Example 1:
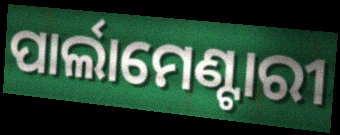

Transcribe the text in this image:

ପାର୍ଲାମେଣ୍ଟାରୀ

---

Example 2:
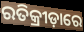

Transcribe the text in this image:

ରତିକ୍ରୀଡ଼ାରେ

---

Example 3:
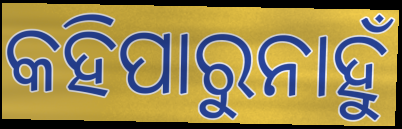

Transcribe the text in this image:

କହିପାରୁନାହୁଁ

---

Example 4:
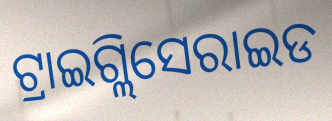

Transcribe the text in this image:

ଟ୍ରାଇଗ୍ଲିସେରାଇଡ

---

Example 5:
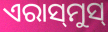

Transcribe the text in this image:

ଏରାସ୍‍ମୁସ୍